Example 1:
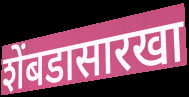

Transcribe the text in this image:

शेंबडासारखा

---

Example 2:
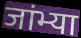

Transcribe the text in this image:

जांभ्या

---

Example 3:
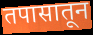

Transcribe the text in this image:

तपासातून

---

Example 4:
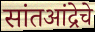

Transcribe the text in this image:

सांतआंद्रेचे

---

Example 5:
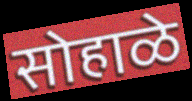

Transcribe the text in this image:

सोहाळे